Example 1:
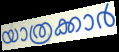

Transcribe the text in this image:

യാത്രക്കാർ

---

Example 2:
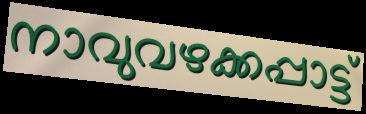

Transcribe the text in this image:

നാവുവഴക്കപ്പാട്ട്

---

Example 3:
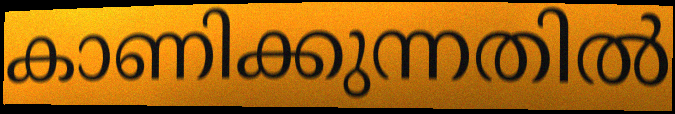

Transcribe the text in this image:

കാണിക്കുന്നതിൽ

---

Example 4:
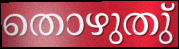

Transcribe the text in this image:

തൊഴുതു്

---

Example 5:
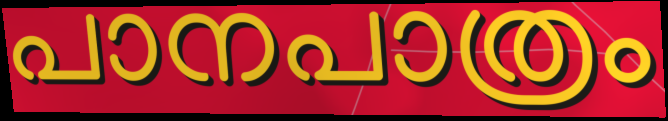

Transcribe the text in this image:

പാനപാത്രം